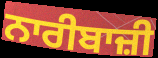
ਨਾਰੀਬਾਜ਼ੀ